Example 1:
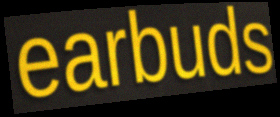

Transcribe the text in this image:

earbuds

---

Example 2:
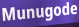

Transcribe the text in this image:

Munugode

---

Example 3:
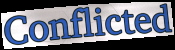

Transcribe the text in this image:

Conflicted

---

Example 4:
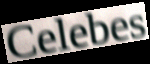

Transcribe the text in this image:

Celebes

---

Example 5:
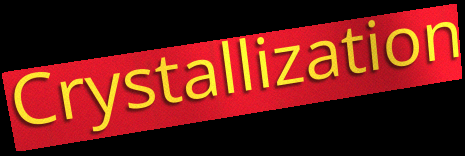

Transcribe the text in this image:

Crystallization